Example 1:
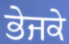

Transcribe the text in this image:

ਭੇਜਕੇ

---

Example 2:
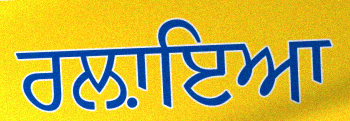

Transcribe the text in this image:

ਰਲ਼ਾਇਆ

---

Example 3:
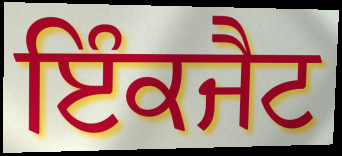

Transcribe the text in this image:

ਇੰਕਜੈਟ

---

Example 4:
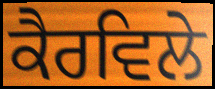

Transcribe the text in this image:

ਕੈਰਵਿਲੇ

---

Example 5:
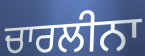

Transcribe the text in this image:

ਚਾਰਲੀਨਾ